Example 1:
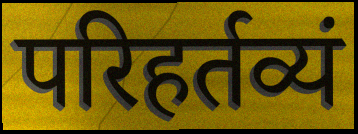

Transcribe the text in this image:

परिहर्तव्यं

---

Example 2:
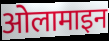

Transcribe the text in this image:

ओलामाइन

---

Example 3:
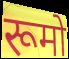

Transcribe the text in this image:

रूमो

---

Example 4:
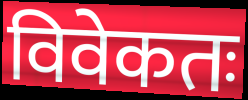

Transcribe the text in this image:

विवेकतः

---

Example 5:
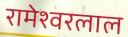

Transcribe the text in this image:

रामेश्वरलाल